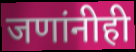
जणांनीही